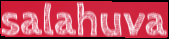
salahuva